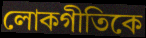
লোকগীতিকে